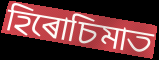
হিৰোচিমাত